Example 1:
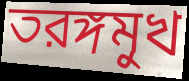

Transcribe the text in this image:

তরঙ্গমুখ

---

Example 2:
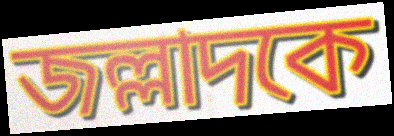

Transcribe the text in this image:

জল্লাদকে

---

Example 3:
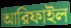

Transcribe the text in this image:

আরিফাইল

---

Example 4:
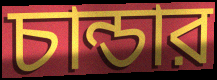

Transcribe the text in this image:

চান্ডার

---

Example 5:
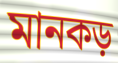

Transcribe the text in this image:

মানকড়